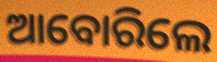
ଆବୋରିଲେ